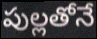
పుల్లతోనే